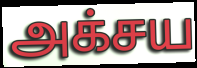
அக்சய